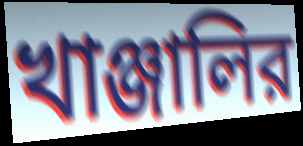
খাঞ্জালির